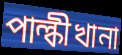
পাল্কীখানা